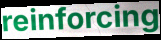
reinforcing